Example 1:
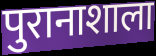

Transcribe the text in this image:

पुरानाशाला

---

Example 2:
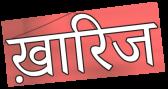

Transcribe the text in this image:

ख़ारिज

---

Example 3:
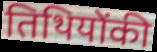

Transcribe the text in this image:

तिथियोंकी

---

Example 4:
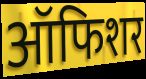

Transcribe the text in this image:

ऑफिशर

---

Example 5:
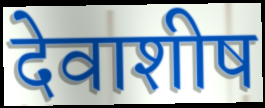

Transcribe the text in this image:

देवाशीष